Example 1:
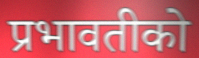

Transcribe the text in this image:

प्रभावतीको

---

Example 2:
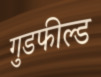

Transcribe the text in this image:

गुडफील्ड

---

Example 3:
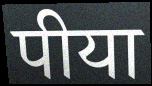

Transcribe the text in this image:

पीया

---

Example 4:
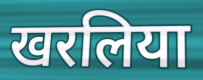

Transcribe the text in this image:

खरलिया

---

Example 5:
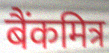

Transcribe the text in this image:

बैंकमित्र